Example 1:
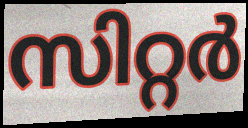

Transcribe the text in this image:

സിറ്റർ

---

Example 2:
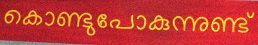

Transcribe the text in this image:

കൊണ്ടുപോകുന്നുണ്ട്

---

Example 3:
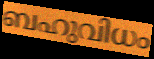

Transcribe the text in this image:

ബഹുവിധം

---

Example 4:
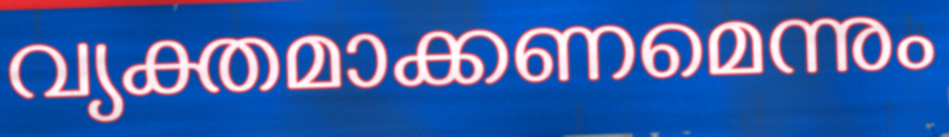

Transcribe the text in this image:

വ്യക്തമാക്കണമെന്നും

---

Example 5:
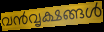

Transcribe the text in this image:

വൻവൃക്ഷങ്ങൾ